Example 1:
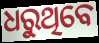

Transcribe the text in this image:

ଧରୁଥିବେ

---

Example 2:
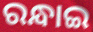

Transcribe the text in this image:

ରନ୍ଧାଇ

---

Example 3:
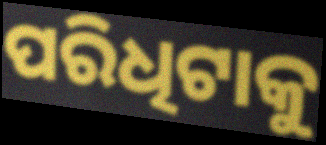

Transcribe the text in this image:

ପରିଧିଟାକୁ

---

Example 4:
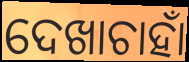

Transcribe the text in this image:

ଦେଖାଚାହାଁ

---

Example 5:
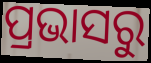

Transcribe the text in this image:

ପ୍ରଭାସରୁ